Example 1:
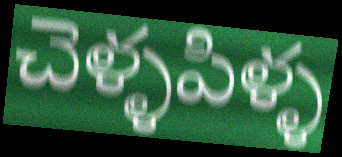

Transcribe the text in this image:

చెళ్ళపిళ్ళ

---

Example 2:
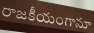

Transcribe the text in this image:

రాజకీయంగానూ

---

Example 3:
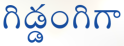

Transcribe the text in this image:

గిడ్డంగిగా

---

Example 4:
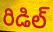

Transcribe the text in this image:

రిడిల్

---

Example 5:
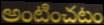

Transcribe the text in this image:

అంటించటం